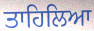
ਤਾਹਿਲਿਆ